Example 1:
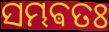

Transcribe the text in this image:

ସମ୍ଭଵତଃ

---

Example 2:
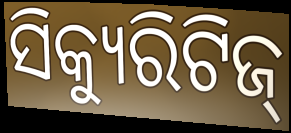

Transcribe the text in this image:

ସିକ୍ୟୁରିଟିଜ୍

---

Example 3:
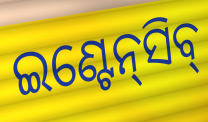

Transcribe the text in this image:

ଇଣ୍ଟେନ୍‍ସିବ୍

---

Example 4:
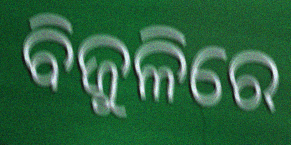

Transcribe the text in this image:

ବିଜୁଳିରେ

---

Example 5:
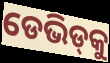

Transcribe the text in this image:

ଡେଭିଡ୍‍କୁ